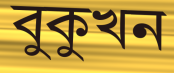
বুকুখন